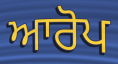
ਆਰੋਪ